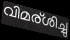
വിമര്ശിച്ചു